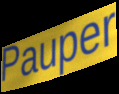
Pauper